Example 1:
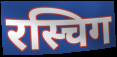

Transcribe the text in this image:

रस्चिग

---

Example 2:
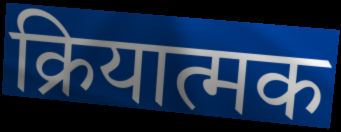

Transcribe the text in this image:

क्रियात्मक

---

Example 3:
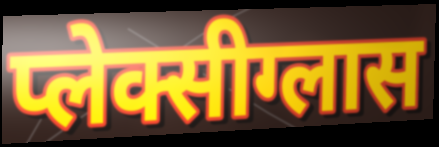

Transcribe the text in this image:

प्लेक्सीग्लास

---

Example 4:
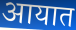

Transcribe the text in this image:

आयात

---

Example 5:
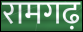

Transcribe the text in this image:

रामगढ़